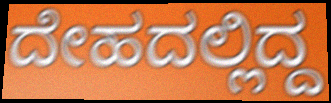
ದೇಹದಲ್ಲಿದ್ದ